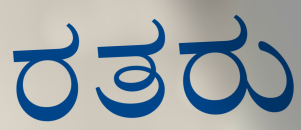
ರತರು